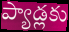
ప్యాడ్లకు